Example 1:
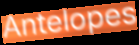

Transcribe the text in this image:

Antelopes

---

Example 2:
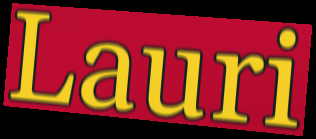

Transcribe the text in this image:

Lauri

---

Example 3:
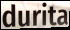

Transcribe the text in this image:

durita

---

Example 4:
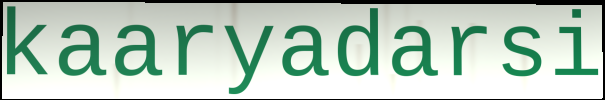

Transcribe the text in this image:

kaaryadarsi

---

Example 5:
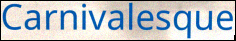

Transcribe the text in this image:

Carnivalesque